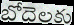
బోదెలకు